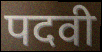
पदवी